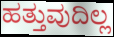
ಹತ್ತುವುದಿಲ್ಲ